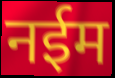
नईम